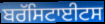
ਬਰੱਸਿਟਾਈਟਸ